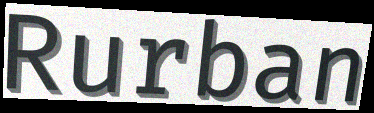
Rurban